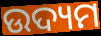
ଉଦ୍ୟମ